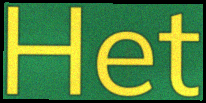
Het